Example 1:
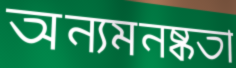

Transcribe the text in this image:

অন্যমনষ্কতা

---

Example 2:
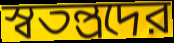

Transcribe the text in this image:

স্বতন্ত্রদের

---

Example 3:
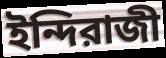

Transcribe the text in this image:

ইন্দিরাজী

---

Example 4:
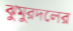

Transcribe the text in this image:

ঝুমুরদলের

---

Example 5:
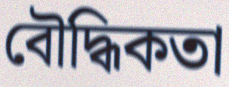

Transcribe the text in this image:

বৌদ্ধিকতা